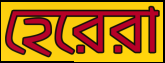
হেরেরা